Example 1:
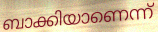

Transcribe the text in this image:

ബാക്കിയാണെന്ന്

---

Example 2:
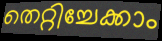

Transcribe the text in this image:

തെറ്റിച്ചേക്കാം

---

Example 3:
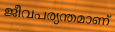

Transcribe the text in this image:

ജീവപര്യന്തമാണ്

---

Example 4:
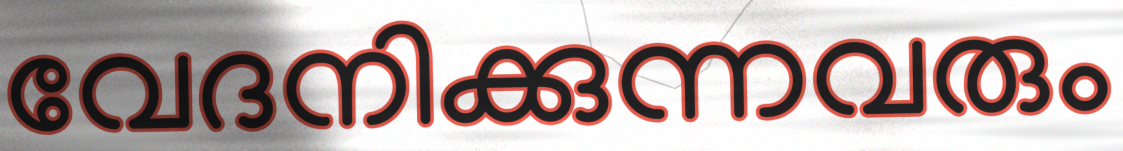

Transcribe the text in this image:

വേദനിക്കുന്നവരും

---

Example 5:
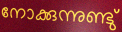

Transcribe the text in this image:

നോക്കുന്നുണ്ടു്